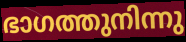
ഭാഗത്തുനിന്നു